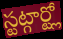
స్టట్గార్ట్లో